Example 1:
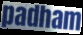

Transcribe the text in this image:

padham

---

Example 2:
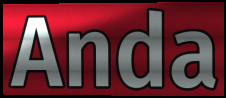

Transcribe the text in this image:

Anda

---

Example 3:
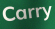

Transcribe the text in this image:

Carry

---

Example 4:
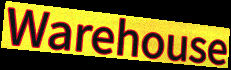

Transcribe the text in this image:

Warehouse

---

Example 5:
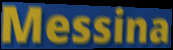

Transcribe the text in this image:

Messina